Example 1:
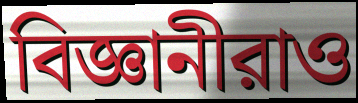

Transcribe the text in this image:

বিজ্ঞানীরাও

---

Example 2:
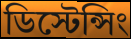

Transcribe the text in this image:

ডিস্টেন্সিং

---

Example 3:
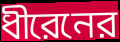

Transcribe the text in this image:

ধীরেনের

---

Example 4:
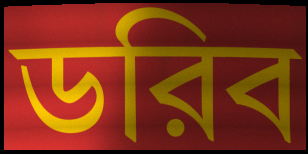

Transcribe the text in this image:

ডরিব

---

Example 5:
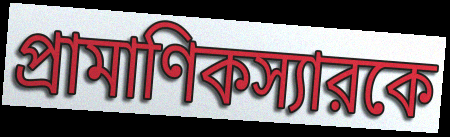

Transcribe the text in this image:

প্রামাণিকস্যারকে